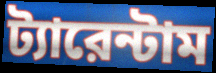
ট্যারেন্টাম